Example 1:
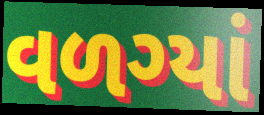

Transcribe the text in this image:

વળગ્યાં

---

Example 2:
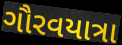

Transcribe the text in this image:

ગૌરવયાત્રા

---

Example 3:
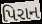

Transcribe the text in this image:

પિરાન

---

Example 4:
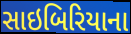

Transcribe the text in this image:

સાઇબિરિયાના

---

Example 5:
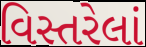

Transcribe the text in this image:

વિસ્તરેલાં